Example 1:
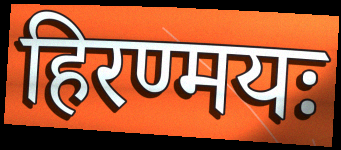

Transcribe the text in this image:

हिरण्मयः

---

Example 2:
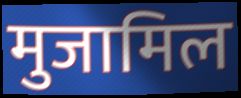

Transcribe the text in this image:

मुजामिल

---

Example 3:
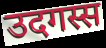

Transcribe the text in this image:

उदगस्स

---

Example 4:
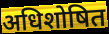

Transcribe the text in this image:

अधिशोषित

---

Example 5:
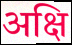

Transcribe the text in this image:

अक्षि